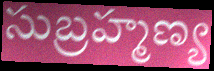
సుబ్రహ్మణ్య